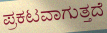
ಪ್ರಕಟವಾಗುತ್ತದೆ